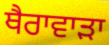
ਥੈਰਾਵਾੜਾ